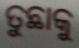
ତୁଛାକୁ